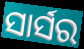
ସାର୍ସର